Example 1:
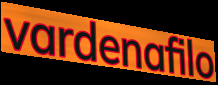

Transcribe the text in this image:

vardenafilo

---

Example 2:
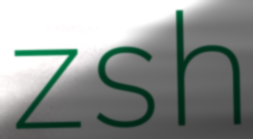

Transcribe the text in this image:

zsh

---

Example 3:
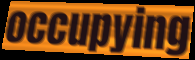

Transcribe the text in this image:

occupying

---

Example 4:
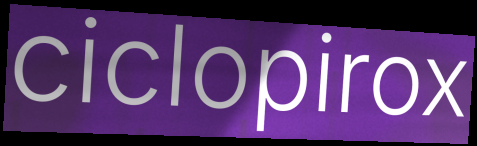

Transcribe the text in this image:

ciclopirox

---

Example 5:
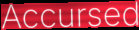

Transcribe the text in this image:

Accursed